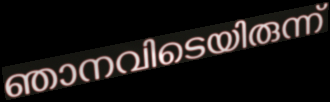
ഞാനവിടെയിരുന്ന്